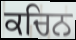
ਕਚਿਨ